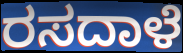
ರಸದಾಳೆ